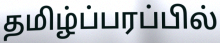
தமிழ்ப்பரப்பில்